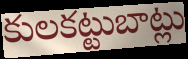
కులకట్టుబాట్లు